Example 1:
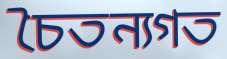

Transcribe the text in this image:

চৈতন্যগত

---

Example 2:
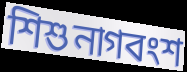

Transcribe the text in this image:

শিশুনাগবংশ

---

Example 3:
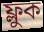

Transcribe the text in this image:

ফ্লুক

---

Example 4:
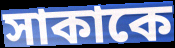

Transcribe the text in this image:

সাকাকে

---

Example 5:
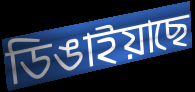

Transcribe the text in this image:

ডিঙাইয়াছে